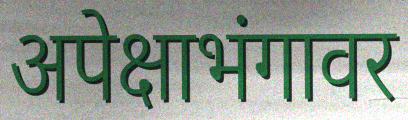
अपेक्षाभंगावर